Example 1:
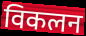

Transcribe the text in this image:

विकलन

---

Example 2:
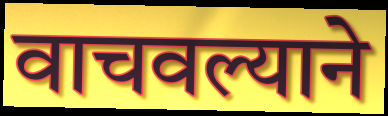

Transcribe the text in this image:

वाचवल्याने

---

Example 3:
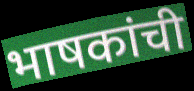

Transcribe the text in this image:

भाषकांची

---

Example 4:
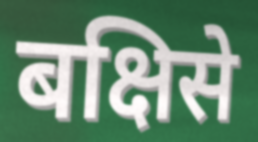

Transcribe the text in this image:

बक्षिसे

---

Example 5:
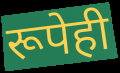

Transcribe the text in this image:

रूपेही